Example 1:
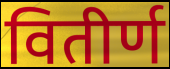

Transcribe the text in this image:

वितीर्ण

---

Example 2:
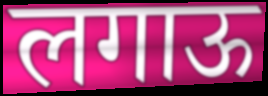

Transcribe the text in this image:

लगाऊ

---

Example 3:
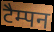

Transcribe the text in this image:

टैम्पन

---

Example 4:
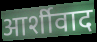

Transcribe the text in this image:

आर्शीवाद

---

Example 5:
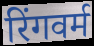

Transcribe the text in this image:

रिंगवर्म